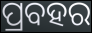
ପ୍ରବହର